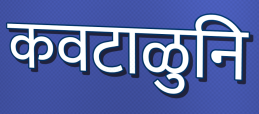
कवटाळुनि